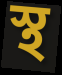
স্থ